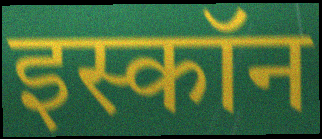
इस्कॉन